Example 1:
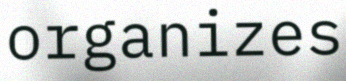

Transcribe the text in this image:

organizes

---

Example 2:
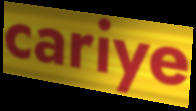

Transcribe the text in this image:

cariye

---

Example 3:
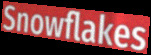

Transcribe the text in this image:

Snowflakes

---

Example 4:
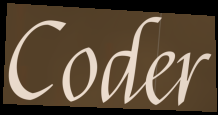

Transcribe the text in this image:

Coder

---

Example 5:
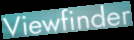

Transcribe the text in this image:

Viewfinder